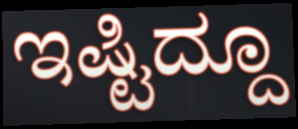
ಇಷ್ಟಿದ್ದೂ